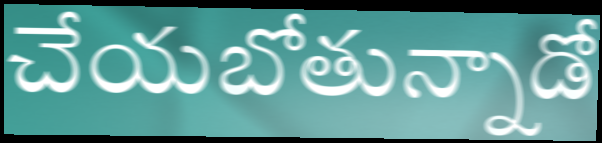
చేయబోతున్నాడో